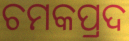
ଚମକପ୍ରଦ